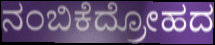
ನಂಬಿಕೆದ್ರೋಹದ